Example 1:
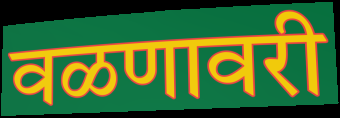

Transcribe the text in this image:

वळणावरी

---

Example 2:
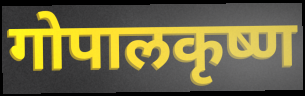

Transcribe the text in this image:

गोपालकृष्ण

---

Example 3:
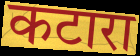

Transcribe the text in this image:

कटारा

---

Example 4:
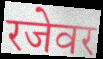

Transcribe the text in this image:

रजेवर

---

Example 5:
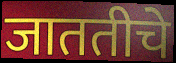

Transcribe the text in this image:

जाततीचे